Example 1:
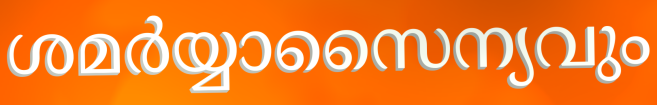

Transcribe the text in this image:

ശമർയ്യാസൈന്യവും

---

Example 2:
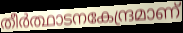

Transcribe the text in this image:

തീർത്ഥാടനകേന്ദ്രമാണ്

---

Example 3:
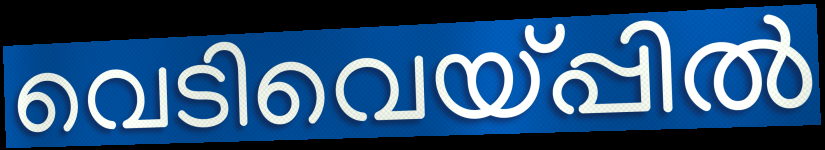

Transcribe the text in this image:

വെടിവെയ്പ്പിൽ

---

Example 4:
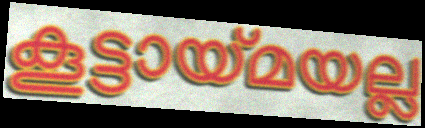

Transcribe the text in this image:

കൂട്ടായ്മയല്ല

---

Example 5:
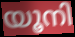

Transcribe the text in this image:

യൂനി